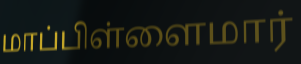
மாப்பிள்ளைமார்